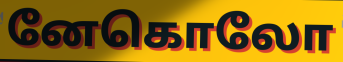
னேகொலோ